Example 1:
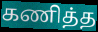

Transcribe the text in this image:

கணித்த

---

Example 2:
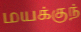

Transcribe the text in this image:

மயக்குந்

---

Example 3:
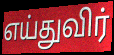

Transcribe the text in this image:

எய்துவிர்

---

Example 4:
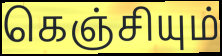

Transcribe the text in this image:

கெஞ்சியும்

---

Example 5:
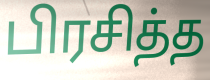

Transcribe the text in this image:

பிரசித்த